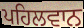
ਪਹਿਲਵਾਨ